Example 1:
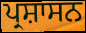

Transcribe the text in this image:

ਪ੍ਰਸ਼ਾਸਨ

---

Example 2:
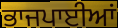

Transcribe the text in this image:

ਭਾਜਪਾਈਆਂ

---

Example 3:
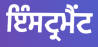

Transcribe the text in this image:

ਇੰਸਟ੍ਰਮੈਂਟ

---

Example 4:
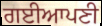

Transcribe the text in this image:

ਗਈਆਪਣੀ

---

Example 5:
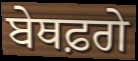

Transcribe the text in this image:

ਬੇਥਫ਼ਗੇ